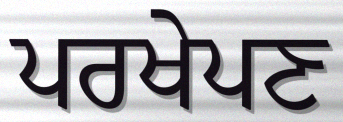
ਪਰਖੇਪਣ